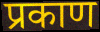
प्रकाण